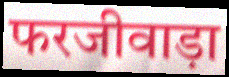
फरजीवाड़ा